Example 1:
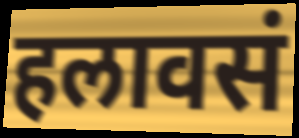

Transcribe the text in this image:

हलावसं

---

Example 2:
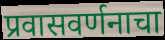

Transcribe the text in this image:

प्रवासवर्णनाचा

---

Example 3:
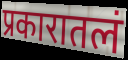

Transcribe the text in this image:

प्रकारातलं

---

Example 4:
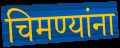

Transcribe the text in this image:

चिमण्यांना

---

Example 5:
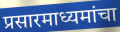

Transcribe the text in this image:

प्रसारमाध्यमांचा